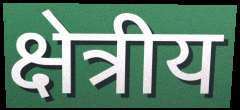
क्षेत्रीय